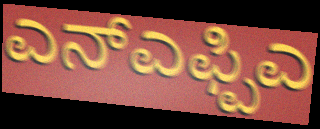
ಎನ್ಎಫ್ಪಿಎ